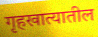
गृहखात्यातील